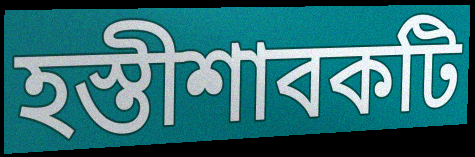
হস্তীশাবকটি